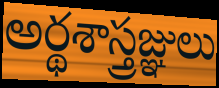
అర్థశాస్త్రజ్ఞులు